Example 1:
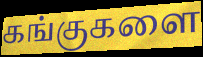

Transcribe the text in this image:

கங்குகளை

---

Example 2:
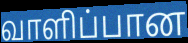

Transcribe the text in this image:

வாளிப்பான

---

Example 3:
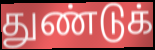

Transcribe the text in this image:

துண்டுக்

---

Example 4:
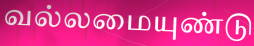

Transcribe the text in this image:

வல்லமையுண்டு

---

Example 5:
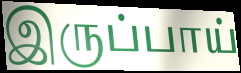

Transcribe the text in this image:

இருப்பாய்